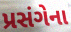
પ્રસંગેના